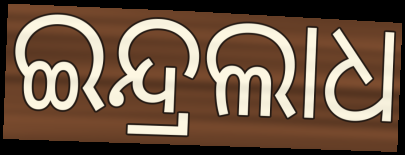
ଇନ୍ଦ୍ରଲାଧ